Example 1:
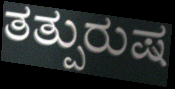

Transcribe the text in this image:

ತತ್ಪುರುಷ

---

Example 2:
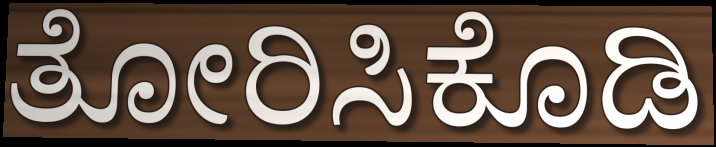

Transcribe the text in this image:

ತೋರಿಸಿಕೊಡಿ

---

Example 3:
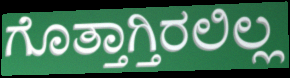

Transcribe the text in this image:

ಗೊತ್ತಾಗ್ತಿರಲಿಲ್ಲ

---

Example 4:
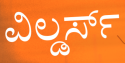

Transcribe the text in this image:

ವಿಲ್ಡರ್ಸ್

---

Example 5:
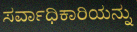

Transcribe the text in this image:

ಸರ್ವಾಧಿಕಾರಿಯನ್ನು